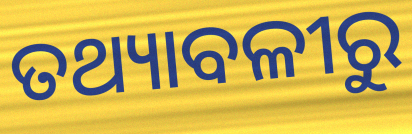
ତଥ୍ୟାବଳୀରୁ